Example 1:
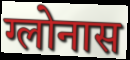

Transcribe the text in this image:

ग्लोनास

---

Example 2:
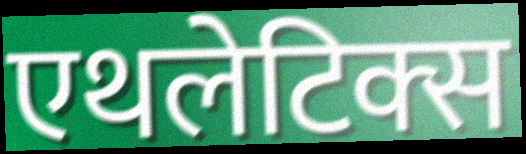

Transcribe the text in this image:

एथलेटिक्‍स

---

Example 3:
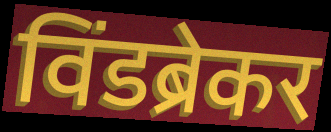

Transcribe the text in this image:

विंडब्रेकर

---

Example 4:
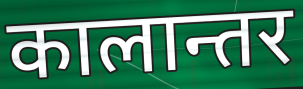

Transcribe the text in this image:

कालान्तर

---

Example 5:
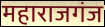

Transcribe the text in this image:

महाराजगंज